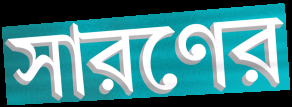
সারণের